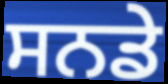
ਸਨਡੇ